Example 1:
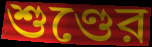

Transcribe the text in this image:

শুণ্ডের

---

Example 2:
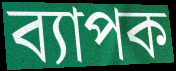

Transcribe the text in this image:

ব্যাপক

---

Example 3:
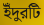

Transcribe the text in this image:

ইঁদুরটি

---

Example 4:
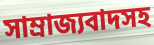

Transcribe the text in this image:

সাম্রাজ্যবাদসহ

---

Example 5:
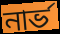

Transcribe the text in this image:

নার্ভ